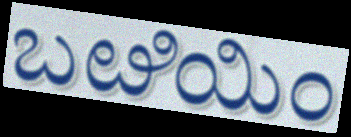
ಬೞಿಯಿಂ